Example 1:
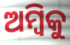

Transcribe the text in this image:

ଅମ୍ବିକୁ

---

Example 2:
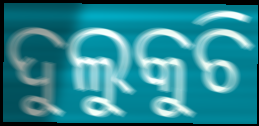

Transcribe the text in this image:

ଦୁଲୁକୁଚି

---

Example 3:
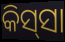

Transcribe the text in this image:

କିସ୍‍ସା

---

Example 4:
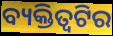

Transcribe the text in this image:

ବ୍ୟକ୍ତିତ୍ୱଟିର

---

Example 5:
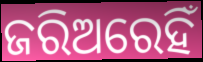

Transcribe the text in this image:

ଜରିଅରେହିଁ